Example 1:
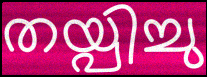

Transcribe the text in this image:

തയ്പിച്ചു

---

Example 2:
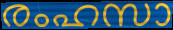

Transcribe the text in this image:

രംഹസാ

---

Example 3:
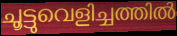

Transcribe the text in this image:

ചൂട്ടുവെളിച്ചത്തിൽ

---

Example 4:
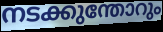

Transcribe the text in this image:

നടക്കുന്തോറും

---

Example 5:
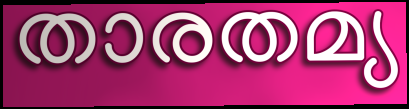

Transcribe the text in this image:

താരതമ്യ